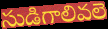
సుడిగాలివలె